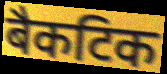
बैकटिक